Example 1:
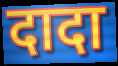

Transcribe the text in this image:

दादा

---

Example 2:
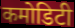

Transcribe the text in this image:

कमोडिटी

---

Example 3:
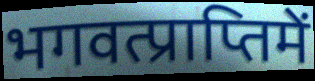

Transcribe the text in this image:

भगवत्प्राप्तिमें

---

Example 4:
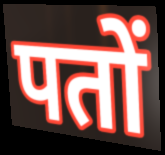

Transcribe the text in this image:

पतों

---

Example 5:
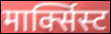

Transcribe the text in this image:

मार्क्सिस्ट